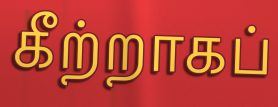
கீற்றாகப்